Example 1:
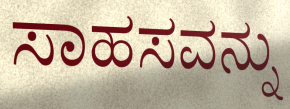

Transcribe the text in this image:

ಸಾಹಸವನ್ನು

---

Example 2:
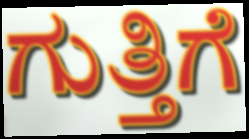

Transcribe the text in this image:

ಗುತ್ತಿಗೆ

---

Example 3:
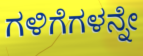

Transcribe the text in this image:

ಗಳಿಗೆಗಳನ್ನೇ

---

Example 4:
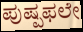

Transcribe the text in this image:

ಪುಷ್ಪಫಲೇ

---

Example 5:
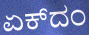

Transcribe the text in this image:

ಏಕ್‌ದಂ